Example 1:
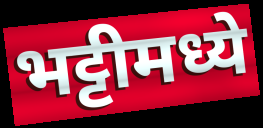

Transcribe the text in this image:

भट्टीमध्ये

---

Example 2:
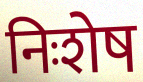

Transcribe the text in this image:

निःशेष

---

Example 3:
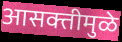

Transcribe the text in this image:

आसक्तीमुळे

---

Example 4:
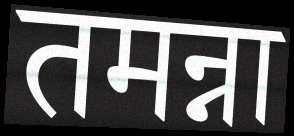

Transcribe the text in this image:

तमन्ना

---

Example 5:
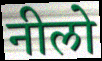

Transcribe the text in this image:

नीलो